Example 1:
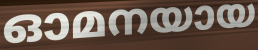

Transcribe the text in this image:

ഓമനയായ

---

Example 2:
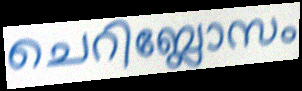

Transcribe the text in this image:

ചെറിബ്ലോസം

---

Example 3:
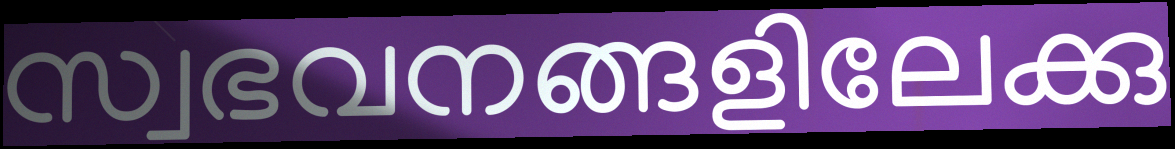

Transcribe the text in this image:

സ്വഭവനങ്ങളിലേക്കു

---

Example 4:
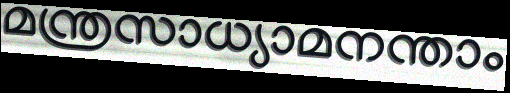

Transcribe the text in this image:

മന്ത്രസാധ്യാമനന്താം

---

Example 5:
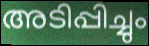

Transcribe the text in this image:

അടിപ്പിച്ചും